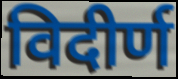
विदीर्ण